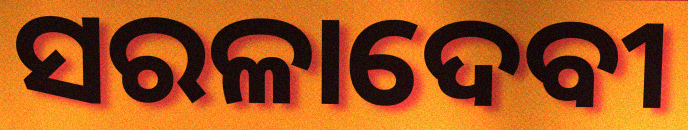
ସରଳାଦେବୀ